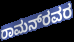
ರಾಮನ್‌ರವರ